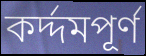
কর্দ্দমপূর্ণ